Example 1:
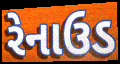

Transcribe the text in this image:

રેનાઉડ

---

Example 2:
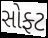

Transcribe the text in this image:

સોફ્ટ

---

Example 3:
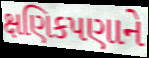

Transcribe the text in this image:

ક્ષણિકપણાને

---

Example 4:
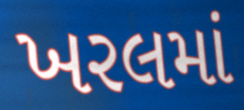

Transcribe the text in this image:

ખરલમાં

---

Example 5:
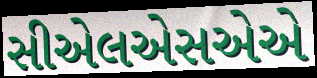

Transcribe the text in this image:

સીએલએસએએ